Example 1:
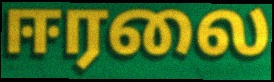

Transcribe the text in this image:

ஈரலை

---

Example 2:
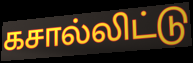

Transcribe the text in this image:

கசால்லிட்டு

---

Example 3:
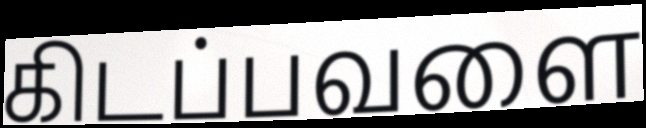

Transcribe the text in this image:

கிடப்பவளை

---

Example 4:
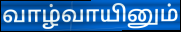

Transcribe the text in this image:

வாழ்வாயினும்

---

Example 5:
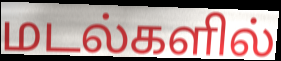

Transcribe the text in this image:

மடல்களில்